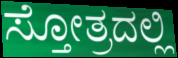
ಸ್ತೋತ್ರದಲ್ಲಿ